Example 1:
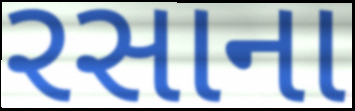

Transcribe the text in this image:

રસાના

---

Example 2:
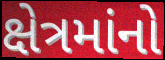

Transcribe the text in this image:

ક્ષેત્રમાંનો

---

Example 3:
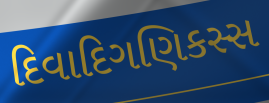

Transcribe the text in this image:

દિવાદિગણિકસ્સ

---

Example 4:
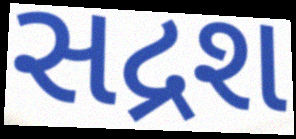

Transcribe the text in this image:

સદ્રશ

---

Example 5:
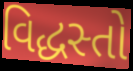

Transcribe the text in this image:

વિદ્ધસ્તો